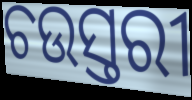
ଚଉସ୍ତରୀ